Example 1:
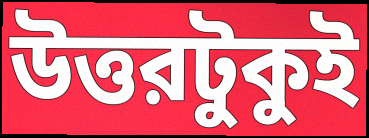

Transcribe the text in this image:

উত্তরটুকুই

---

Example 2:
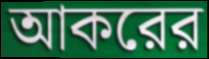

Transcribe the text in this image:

আকরের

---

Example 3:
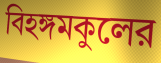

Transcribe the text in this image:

বিহঙ্গমকুলের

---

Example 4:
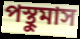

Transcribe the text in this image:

পস্থুমাস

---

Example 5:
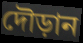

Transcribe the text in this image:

দৌড়ান